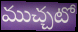
ముచ్చటో